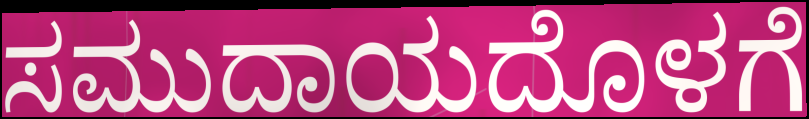
ಸಮುದಾಯದೊಳಗೆ